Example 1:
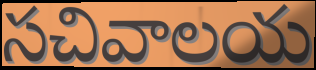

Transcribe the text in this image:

సచివాలయ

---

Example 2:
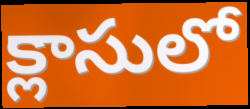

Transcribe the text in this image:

క్లాసులో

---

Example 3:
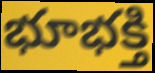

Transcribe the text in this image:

భూభక్తి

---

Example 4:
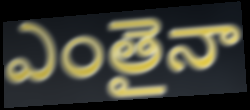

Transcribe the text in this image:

ఎంతైనా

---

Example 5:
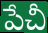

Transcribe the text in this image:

పేచీ